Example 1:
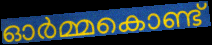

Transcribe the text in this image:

ഓർമ്മകൊണ്ട്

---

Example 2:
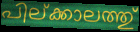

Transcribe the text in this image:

പില്ക്കാലത്തു്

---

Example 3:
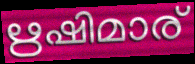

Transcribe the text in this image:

ഋഷിമാര്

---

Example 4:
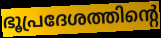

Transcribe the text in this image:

ഭൂപ്രദേശത്തിന്റെ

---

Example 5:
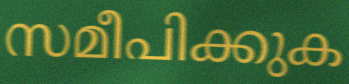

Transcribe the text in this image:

സമീപിക്കുക